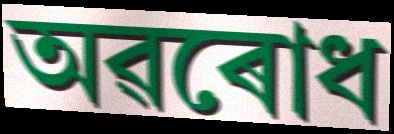
অৱৰোধ